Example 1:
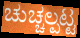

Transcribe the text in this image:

ಚುಚ್ಚಲ್ಪಟ್ಟ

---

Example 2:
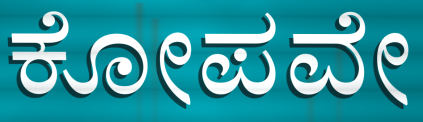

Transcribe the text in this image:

ಕೋಪವೇ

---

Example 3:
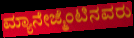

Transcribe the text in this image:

ಮ್ಯಾನೇಜ್ಮೆಂಟಿನವರು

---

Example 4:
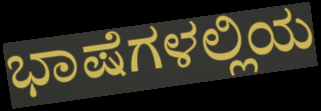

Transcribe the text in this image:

ಭಾಷೆಗಳಲ್ಲಿಯ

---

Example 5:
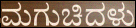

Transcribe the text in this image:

ಮಗುಚಿದಳು